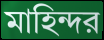
মাহিন্দর